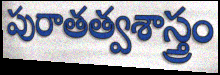
పురాతత్వశాస్త్రం